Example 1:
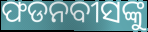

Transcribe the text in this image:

ଫଡନବୀସଙ୍କୁ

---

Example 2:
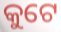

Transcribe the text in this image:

କୁଟେ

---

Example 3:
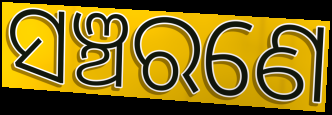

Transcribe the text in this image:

ସଞ୍ଚରଣେ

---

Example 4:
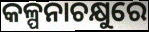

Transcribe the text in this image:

କଳ୍ପନାଚକ୍ଷୁରେ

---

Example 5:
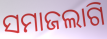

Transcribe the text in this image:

ସମାଜଲାଗି